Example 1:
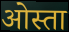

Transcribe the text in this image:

ओस्ता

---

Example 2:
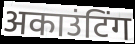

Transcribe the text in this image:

अकाउंटिंग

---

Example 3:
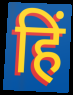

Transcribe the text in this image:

हिं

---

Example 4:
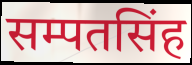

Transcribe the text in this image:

सम्पतसिंह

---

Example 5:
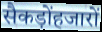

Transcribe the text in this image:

सैकड़ोंहजारों